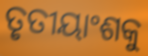
ତୃତୀୟାଂଶକୁ